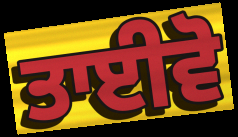
ਤਾਈਵੋ